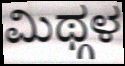
ಮಿಥ್ಗಳ